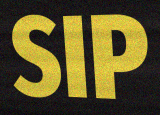
SIP